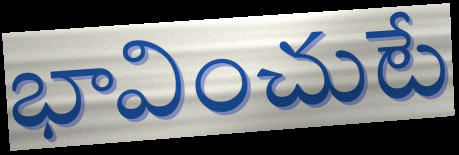
భావించుటే